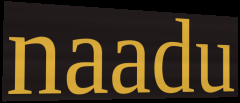
naadu